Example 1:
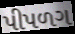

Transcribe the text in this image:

પીપળગ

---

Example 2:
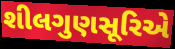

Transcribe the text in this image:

શીલગુણસૂરિએ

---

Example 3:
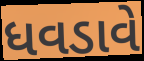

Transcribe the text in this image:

ધવડાવે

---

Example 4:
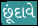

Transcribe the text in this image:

છૂંદાવે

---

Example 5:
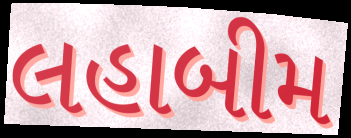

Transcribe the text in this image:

લહાબીમ